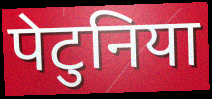
पेटुनिया